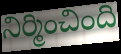
నిర్మించింది